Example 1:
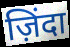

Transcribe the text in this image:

ज़िंदा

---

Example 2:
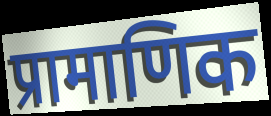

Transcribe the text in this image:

प्रामाणिक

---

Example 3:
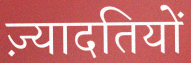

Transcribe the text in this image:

ज़्यादतियों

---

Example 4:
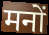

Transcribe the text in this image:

मनों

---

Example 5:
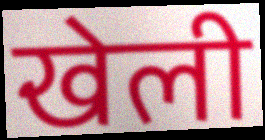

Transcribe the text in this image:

खेली